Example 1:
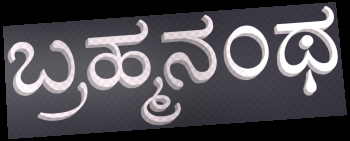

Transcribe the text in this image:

ಬ್ರಹ್ಮನಂಥ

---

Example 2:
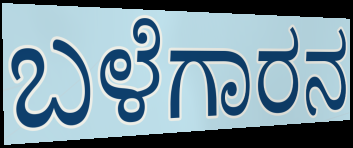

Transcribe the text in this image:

ಬಳೆಗಾರನ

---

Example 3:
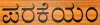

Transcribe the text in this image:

ಪರಕೆಯಂ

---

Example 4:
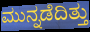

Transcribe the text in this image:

ಮುನ್ನಡೆದಿತ್ತು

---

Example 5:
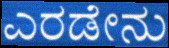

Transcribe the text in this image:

ಎರಡೇನು